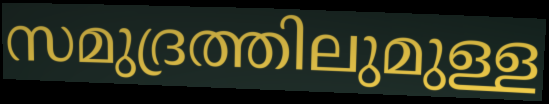
സമുദ്രത്തിലുമുള്ള